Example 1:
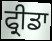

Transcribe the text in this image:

ਫ੍ਰੀਡਾ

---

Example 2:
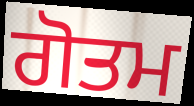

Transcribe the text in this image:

ਗੋਤਮ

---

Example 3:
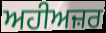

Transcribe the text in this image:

ਅਹੀਅਜ਼ਰ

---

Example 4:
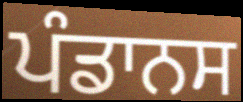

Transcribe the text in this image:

ਪੰਡਾਨਸ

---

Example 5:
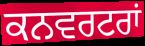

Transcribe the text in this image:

ਕਨਵਰਟਰਾਂ